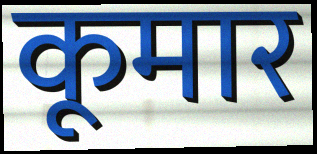
कूमार